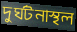
দুর্ঘটনাস্থল